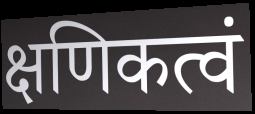
क्षणिकत्वं